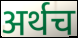
अर्थच